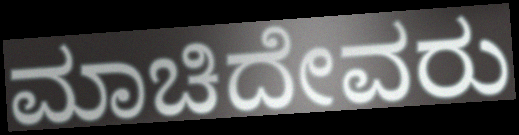
ಮಾಚಿದೇವರು